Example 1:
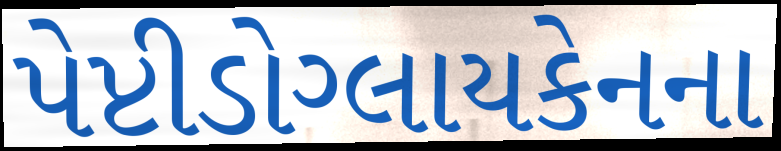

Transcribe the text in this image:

પેપ્ટીડોગ્લાયકેનના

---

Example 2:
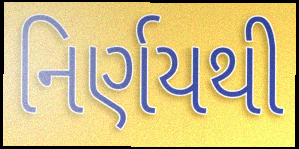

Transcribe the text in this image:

નિર્ણયથી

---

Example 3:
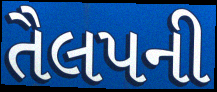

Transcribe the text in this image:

તૈલપની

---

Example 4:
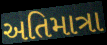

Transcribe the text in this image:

અતિમાત્રા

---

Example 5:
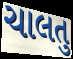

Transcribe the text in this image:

ચાલતુ